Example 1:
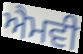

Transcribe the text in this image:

ਐਮਵੀ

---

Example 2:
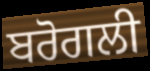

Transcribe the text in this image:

ਬਰੋਗਲੀ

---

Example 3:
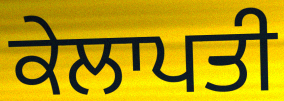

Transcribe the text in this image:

ਕੇਲਾਪਤੀ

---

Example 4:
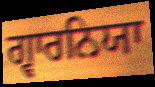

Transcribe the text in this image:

ਗ੍ਵਾਰਨਿਯਾ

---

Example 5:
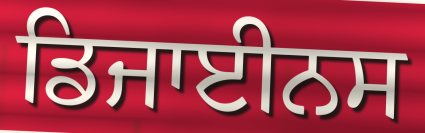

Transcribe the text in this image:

ਡਿਜਾਈਨਸ